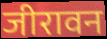
जीरावन